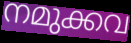
നമുക്കവ